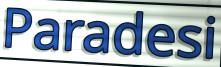
Paradesi